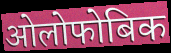
ओलोफोबिक